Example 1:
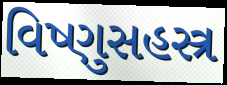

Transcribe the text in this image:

વિષ્ણુસહસ્ત્ર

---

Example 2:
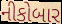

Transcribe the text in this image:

નીકોબાર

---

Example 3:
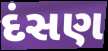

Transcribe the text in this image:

દંસણ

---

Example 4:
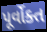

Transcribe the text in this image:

પૂર્વોક્ત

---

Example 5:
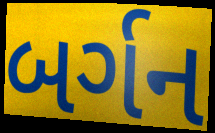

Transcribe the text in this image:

બર્ગન